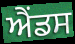
ਐਂਡਸ